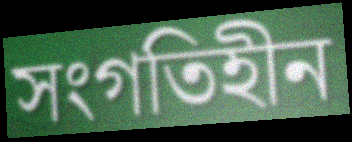
সংগতিহীন